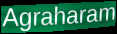
Agraharam